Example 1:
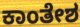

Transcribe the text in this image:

ಕಾಂತೇಶ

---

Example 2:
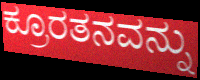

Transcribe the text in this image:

ಕ್ರೂರತನವನ್ನು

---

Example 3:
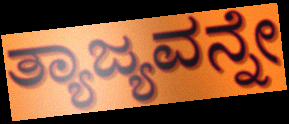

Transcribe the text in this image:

ತ್ಯಾಜ್ಯವನ್ನೇ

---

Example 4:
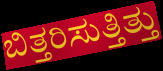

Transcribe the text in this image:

ಬಿತ್ತರಿಸುತ್ತಿತ್ತು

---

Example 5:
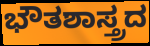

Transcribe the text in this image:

ಭೌತಶಾಸ್ತ್ರದ